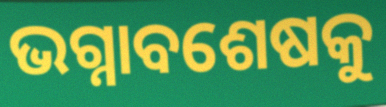
ଭଗ୍ନାବଶେଷକୁ